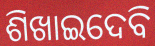
ଶିଖାଇଦେବି